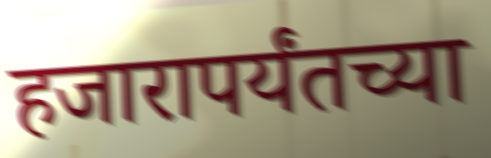
हजारापर्यंतच्या